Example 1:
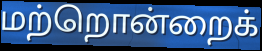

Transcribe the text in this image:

மற்றொன்றைக்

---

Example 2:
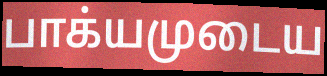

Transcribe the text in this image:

பாக்யமுடைய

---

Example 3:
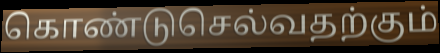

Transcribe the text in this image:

கொண்டுசெல்வதற்கும்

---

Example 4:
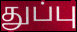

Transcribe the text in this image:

துப்பு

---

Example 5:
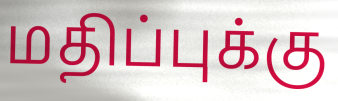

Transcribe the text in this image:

மதிப்புக்கு